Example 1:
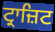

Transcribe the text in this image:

ਟ੍ਰਾਜ਼ਿਟ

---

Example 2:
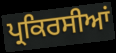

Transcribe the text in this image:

ਪ੍ਰਕਿਰਸੀਆਂ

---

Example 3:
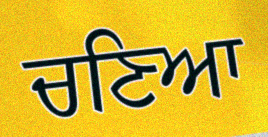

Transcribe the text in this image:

ਚਣਿਆ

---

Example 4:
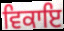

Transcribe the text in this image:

ਵਿਕਾਇ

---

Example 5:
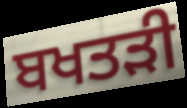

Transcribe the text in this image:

ਬਖਤੜੀ